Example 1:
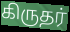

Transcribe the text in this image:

கிருதர்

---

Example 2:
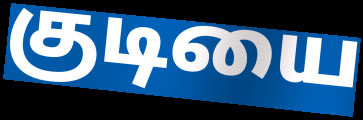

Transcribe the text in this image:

குடியை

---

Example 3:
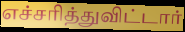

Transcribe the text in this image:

எச்சரித்துவிட்டார்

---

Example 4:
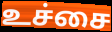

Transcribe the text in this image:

உச்சை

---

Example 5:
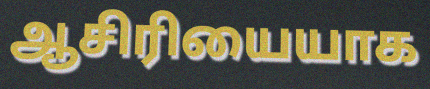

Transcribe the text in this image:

ஆசிரியையாக